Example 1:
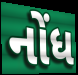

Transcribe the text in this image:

નોંધ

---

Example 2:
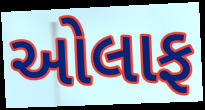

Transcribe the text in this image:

ઓલાફ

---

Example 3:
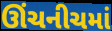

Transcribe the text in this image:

ઊંચનીચમાં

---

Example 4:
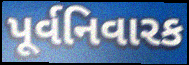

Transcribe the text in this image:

પૂર્વનિવારક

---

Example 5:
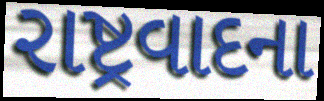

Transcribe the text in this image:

રાષ્ટ્રવાદના